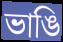
ভাঙি